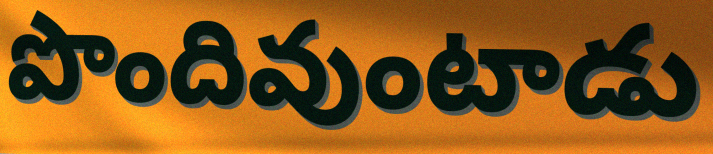
పొందివుంటాడు